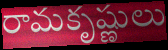
రామకృష్ణులు